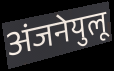
अंजनेयुलू